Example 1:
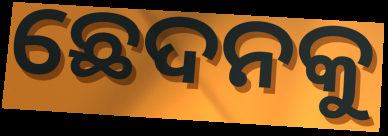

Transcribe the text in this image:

ଛେଦନକୁ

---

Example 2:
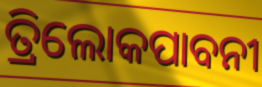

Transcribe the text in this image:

ତ୍ରିଲୋକପାବନୀ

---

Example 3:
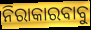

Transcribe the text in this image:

ନିରାକାରବାବୁ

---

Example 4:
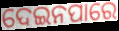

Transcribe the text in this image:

ଦେଇନପାରେ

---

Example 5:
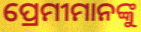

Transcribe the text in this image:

ପ୍ରେମୀମାନଙ୍କୁ